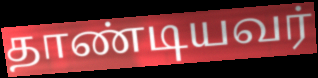
தாண்டியவர்